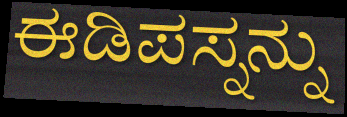
ಈಡಿಪಸ್ನನ್ನು